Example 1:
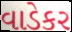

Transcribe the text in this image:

વાડેકર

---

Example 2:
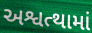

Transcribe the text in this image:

અશ્વત્થામાં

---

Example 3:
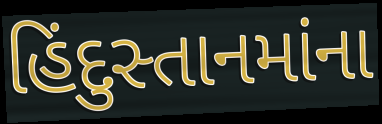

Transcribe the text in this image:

હિંદુસ્તાનમાંના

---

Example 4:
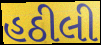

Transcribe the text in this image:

હઠીલી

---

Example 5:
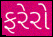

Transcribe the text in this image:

ફરેરો